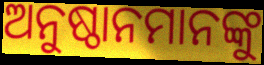
ଅନୁଷ୍ଠାନମାନଙ୍କୁ